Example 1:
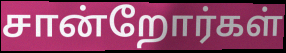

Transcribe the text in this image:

சான்றோர்கள்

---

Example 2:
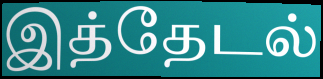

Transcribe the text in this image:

இத்தேடல்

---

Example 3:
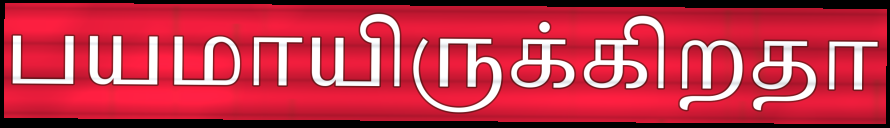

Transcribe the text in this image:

பயமாயிருக்கிறதா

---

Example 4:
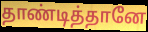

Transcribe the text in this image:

தாண்டித்தானே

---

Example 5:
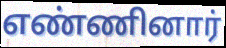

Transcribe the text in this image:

எண்ணினார்